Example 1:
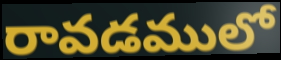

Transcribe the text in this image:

రావడములో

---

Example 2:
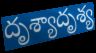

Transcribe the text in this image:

దృశ్యాదృశ్య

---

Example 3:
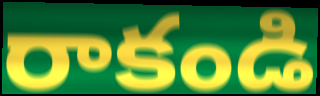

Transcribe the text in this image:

రాకండి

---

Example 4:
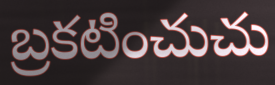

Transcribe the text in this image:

బ్రకటించుచు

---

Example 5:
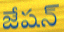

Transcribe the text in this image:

జేషన్